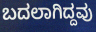
ಬದಲಾಗಿದ್ದವು